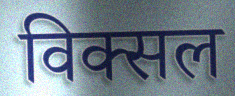
विक्सल